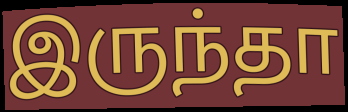
இருந்தா